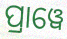
ପ୍ରାୱେ